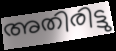
അതിരിട്ടു